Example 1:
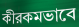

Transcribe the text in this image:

কীরকমভাবে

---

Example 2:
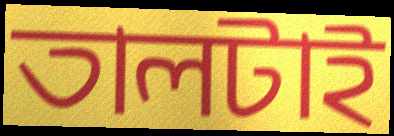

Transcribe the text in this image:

তালটাই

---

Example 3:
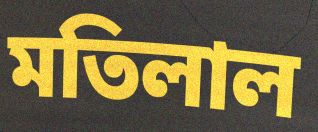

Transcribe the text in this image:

মতিলাল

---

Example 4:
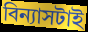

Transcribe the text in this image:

বিন্যাসটাই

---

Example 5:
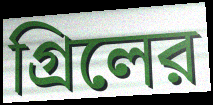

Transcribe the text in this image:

গ্রিলের